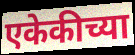
एकेकीच्या